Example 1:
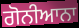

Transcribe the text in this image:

ਗੋਨੀਆਨਾ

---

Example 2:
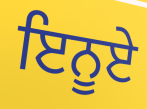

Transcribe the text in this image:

ਇਨੂਏ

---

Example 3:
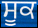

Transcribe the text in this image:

ਸੂਕ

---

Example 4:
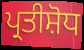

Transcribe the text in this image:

ਪ੍ਰਤੀਸ਼ੋਧ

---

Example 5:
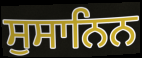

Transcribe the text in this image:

ਸੁਸਾਨਿਨ